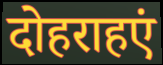
दोहराहएं